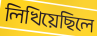
লিখিয়েছিলে